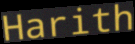
Harith